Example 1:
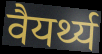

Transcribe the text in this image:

वैयर्थ्य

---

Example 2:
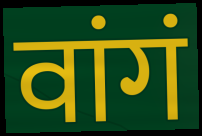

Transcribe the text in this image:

वांगं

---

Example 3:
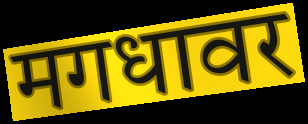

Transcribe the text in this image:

मगधावर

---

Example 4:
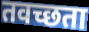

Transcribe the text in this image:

तवच्छता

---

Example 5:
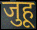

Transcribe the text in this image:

जुहू